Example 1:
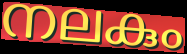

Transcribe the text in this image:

നലകും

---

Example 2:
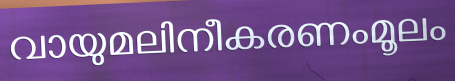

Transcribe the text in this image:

വായുമലിനീകരണംമൂലം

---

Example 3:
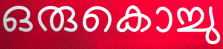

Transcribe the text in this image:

ഒരുകൊച്ചു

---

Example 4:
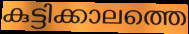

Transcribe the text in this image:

കുട്ടിക്കാലത്തെ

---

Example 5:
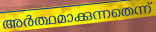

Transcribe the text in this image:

അർത്ഥമാക്കുന്നതെന്ന്